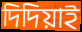
দিদিয়াই